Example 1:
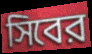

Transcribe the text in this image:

সিবের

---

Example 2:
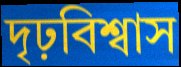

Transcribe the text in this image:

দৃঢ়বিশ্বাস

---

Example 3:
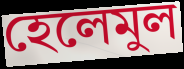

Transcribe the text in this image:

হেলেমুল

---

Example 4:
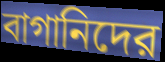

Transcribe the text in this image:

বাগানিদের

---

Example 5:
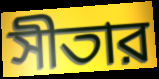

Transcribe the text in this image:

সীতার